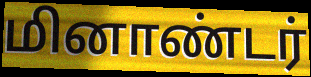
மினாண்டர்